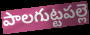
పాలగుట్టపల్లె